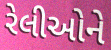
રેલીઓને